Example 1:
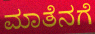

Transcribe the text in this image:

ಮಾತೆನಗೆ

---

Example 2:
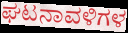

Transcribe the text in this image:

ಘಟನಾವಳಿಗಳ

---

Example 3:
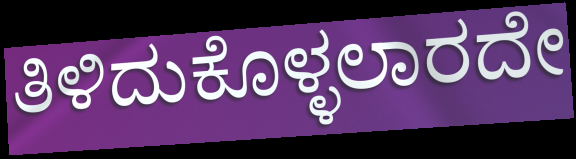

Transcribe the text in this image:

ತಿಳಿದುಕೊಳ್ಳಲಾರದೇ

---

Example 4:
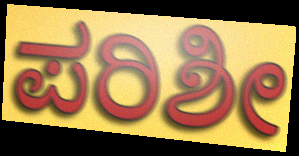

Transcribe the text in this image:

ಪರಿಶೀ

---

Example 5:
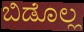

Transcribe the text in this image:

ಬಿಡೊಲ್ಲ